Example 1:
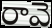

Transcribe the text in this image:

రావె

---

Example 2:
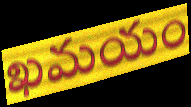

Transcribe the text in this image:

ఖమయం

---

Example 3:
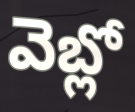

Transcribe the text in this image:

వెబ్లో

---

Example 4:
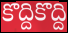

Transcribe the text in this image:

కొద్దికొద్ది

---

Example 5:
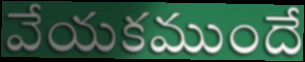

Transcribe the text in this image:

వేయకముందే